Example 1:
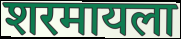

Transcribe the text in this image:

शरमायला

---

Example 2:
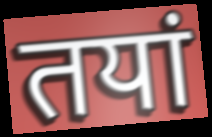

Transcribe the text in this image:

तयां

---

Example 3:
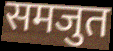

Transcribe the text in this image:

समजुत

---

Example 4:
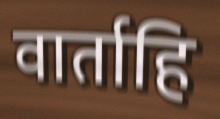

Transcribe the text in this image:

वार्ताहि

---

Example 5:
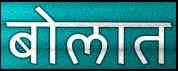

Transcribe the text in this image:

बोलात